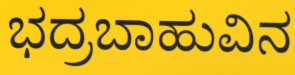
ಭದ್ರಬಾಹುವಿನ